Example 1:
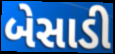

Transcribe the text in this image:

બેસાડી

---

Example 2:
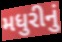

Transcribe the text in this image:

મધુરીનું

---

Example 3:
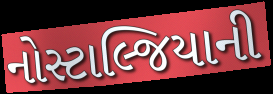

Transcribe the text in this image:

નોસ્ટાલ્જિયાની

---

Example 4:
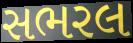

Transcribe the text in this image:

સભરલ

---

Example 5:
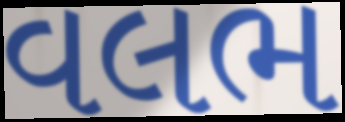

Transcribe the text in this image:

વલભ